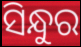
ସିନ୍ଧୁର